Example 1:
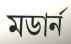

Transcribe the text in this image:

মডার্ন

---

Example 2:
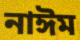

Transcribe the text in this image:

নাঈম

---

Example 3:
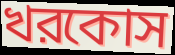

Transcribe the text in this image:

খরকোস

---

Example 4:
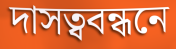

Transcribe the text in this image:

দাসত্ববন্ধনে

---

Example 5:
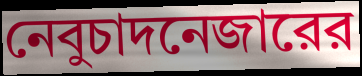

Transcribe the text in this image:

নেবুচাদনেজারের